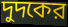
দুদকের